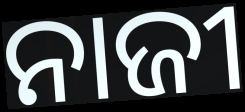
ନାଜୀ